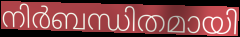
നിർബന്ധിതമായി